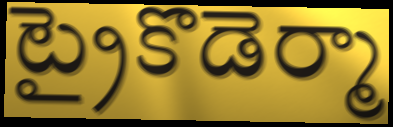
ట్రైకొడెర్మా